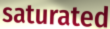
saturated